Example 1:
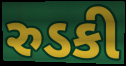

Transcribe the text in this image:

રુડકી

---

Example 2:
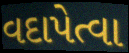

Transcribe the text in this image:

વદાપેત્વા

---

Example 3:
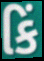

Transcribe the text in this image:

કિં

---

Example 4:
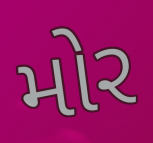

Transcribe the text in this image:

મોર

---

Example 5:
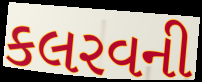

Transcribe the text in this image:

કલરવની